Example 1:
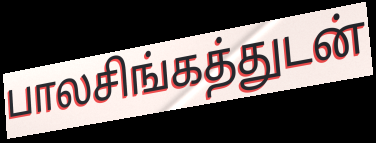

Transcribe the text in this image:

பாலசிங்கத்துடன்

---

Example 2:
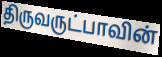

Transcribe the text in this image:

திருவருட்பாவின்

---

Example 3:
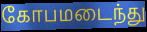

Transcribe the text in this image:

கோபமடைந்து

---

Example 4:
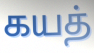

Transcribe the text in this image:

கயத்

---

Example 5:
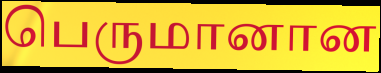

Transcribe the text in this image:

பெருமானான